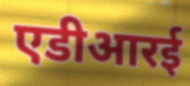
एडीआरई